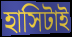
হাসিটাই